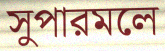
সুপারমলে